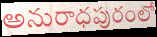
అనురాధపురంలో